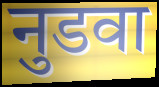
नुडवा